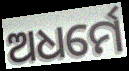
ଅଧର୍ମେ